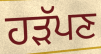
ਹੜੱਪਣ